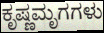
ಕೃಷ್ಣಮೃಗಗಳು